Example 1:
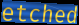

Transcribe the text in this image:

etched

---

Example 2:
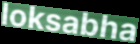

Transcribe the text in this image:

loksabha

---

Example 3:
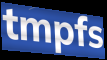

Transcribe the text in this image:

tmpfs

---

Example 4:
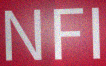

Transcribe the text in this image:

NFI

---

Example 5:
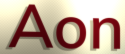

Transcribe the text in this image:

Aon